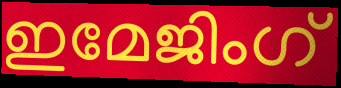
ഇമേജിംഗ്